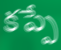
కప్పే